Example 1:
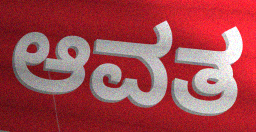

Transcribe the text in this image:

ಆವತ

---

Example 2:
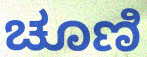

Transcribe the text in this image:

ಚೂಣಿ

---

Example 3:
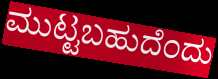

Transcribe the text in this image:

ಮುಟ್ಟಬಹುದೆಂದು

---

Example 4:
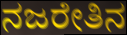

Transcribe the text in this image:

ನಜರೇತಿನ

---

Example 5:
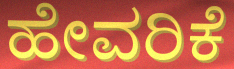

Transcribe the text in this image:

ಹೇವರಿಕೆ